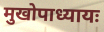
मुखोपाध्यायः